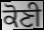
ਕੋਣੀ